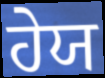
ਹੇਯ